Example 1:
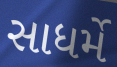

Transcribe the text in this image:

સાધર્મે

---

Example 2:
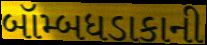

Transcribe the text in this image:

બૉમ્બધડાકાની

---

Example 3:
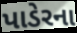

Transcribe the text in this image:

પાડેરના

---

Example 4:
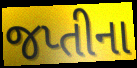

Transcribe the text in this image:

જપ્તીના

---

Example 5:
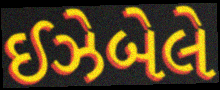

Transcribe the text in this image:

ઈઝેબેલે